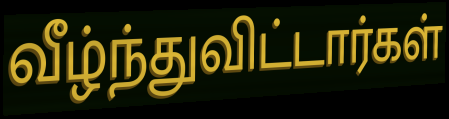
வீழ்ந்துவிட்டார்கள்